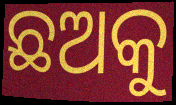
ଛଅକୁ